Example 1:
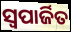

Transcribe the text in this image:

ସ୍ଵପାର୍ଜିତ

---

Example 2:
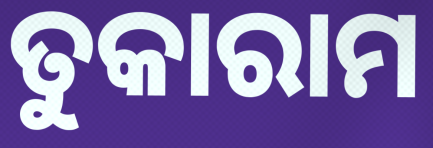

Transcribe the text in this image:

ତୁକାରାମ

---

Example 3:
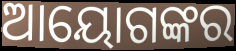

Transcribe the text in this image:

ଆୟୋଗଙ୍କର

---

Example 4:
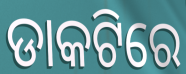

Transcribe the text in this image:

ଡାକଟିରେ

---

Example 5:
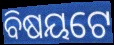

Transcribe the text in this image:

ବିଷୟଟେ